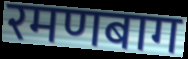
रमणबाग